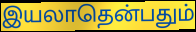
இயலாதென்பதும்